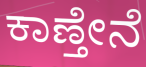
ಕಾಣ್ತೇನೆ